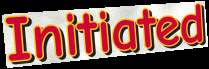
Initiated